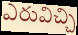
ఎరువిచ్చి